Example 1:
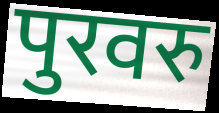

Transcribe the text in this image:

पुरवरु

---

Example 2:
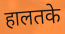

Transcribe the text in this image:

हालतके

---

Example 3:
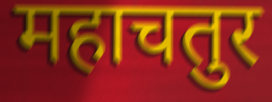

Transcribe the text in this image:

महाचतुर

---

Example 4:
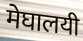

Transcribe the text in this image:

मेघालयी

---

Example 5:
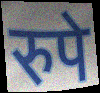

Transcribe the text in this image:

रुपे